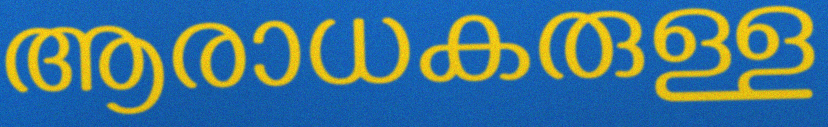
ആരാധകരുള്ള